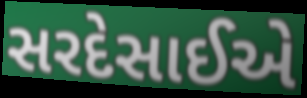
સરદેસાઈએ